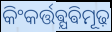
କିଂକର୍ତ୍ତଵ୍ଯଵିମୂଢ଼